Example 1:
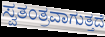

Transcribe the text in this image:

ಸ್ವತಂತ್ರವಾಗುತ್ತದೆ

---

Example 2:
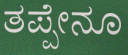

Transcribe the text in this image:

ತಪ್ಪೇನೂ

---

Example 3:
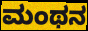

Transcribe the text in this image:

ಮಂಥನ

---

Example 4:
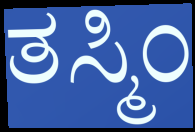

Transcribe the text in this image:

ತಸ್ಮಿಂ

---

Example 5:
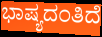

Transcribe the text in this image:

ಭಾಷ್ಯದಂತಿದೆ